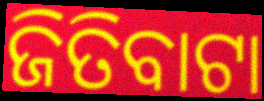
ଜିତିବାଟା